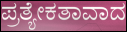
ಪ್ರತ್ಯೇಕತಾವಾದ